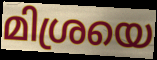
മിശ്രയെ